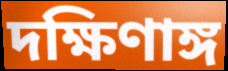
দক্ষিণাঙ্গ